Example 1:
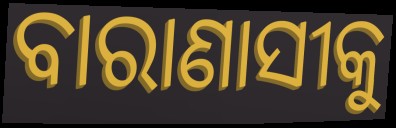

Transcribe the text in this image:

ବାରାଣାସୀକୁ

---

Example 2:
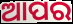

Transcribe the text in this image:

ଆପର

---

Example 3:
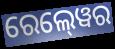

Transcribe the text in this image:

ରେଲ୍‍ୱେର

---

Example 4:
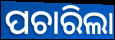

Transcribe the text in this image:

ପଚାରିଲା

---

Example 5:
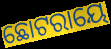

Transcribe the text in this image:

ଛୋଟରାୟେ